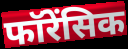
फॉरेंसिक